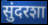
सुंदरशा